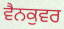
ਵੈਨਕੁਵਰ